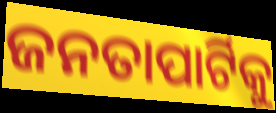
ଜନତାପାର୍ଟିକୁ